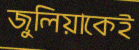
জুলিয়াকেই